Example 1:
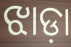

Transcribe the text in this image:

ଝାଡ଼ା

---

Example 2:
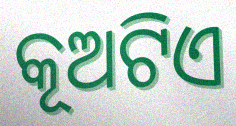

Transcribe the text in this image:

କୂଅଟିଏ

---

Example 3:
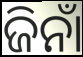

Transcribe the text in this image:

ଜିନାଁ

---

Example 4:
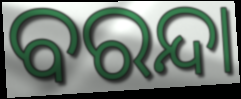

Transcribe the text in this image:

ବରନ୍ଦା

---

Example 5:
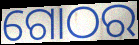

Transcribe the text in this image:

ଗୋଠର